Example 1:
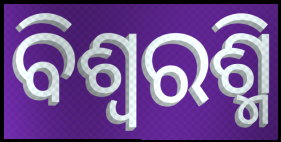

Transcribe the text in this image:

ବିଶ୍ୱରଶ୍ମି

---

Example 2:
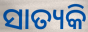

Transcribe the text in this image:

ସାତ୍ୟକି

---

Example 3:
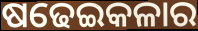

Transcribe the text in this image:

ଷଢେଇକଳାର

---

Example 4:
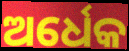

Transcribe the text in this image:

ଅର୍ଧେକ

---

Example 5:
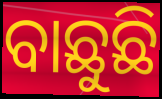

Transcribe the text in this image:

ବାଛୁଛି